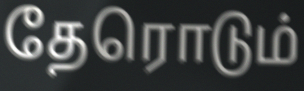
தேரொடும்